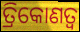
ତ୍ରିକୋଣତ୍ଵ